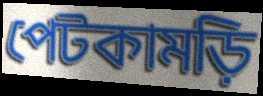
পেটকামড়ি